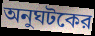
অনুঘটকের